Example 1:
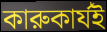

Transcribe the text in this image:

কারুকার্যই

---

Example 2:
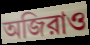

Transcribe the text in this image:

অজিরাও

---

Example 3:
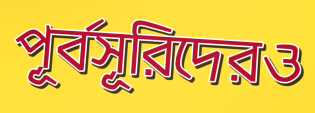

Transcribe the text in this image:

পূর্বসূরিদেরও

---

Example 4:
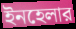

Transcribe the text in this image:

ইনহেলার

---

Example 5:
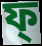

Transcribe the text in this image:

ফ্